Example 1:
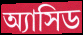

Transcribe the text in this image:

অ্যাসিড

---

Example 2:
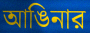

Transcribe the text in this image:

আঙিনার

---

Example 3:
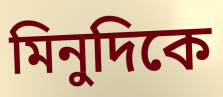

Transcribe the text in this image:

মিনুদিকে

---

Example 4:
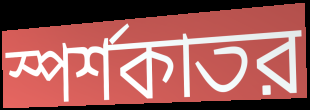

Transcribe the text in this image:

স্পর্শকাতর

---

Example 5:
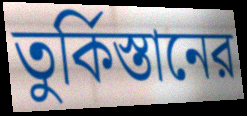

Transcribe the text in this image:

তুর্কিস্তানের